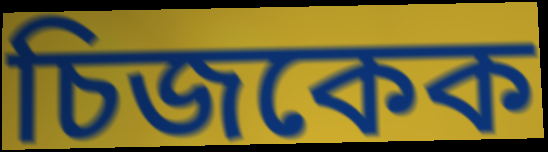
চিজকেক